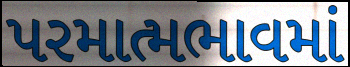
પરમાત્મભાવમાં